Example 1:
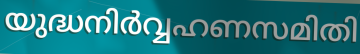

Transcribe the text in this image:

യുദ്ധനിർവ്വഹണസമിതി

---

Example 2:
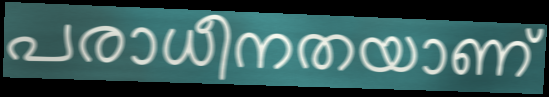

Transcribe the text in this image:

പരാധീനതയാണ്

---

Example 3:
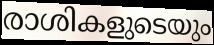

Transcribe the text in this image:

രാശികളുടെയും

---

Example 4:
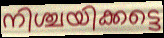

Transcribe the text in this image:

നിശ്ചയിക്കട്ടെ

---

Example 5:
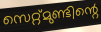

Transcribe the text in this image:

സെറ്റ്മുണ്ടിന്റെ